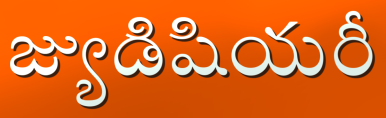
జ్యుడిషియరీ